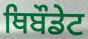
ਥਿਬੌਡੇਟ